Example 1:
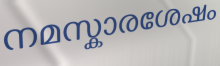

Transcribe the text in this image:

നമസ്കാരശേഷം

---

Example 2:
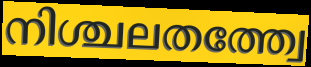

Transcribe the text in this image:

നിശ്ചലതത്ത്വേ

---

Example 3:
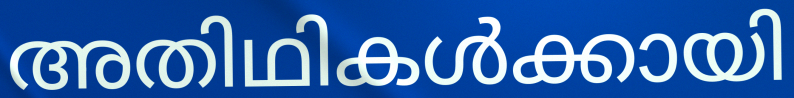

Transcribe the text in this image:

അതിഥികൾക്കായി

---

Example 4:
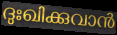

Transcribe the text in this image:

ദുഃഖിക്കുവാൻ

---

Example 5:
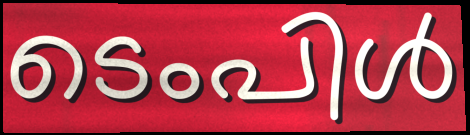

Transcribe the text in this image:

ടെംപിൾ